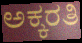
ಅಕ್ಕರತಿ